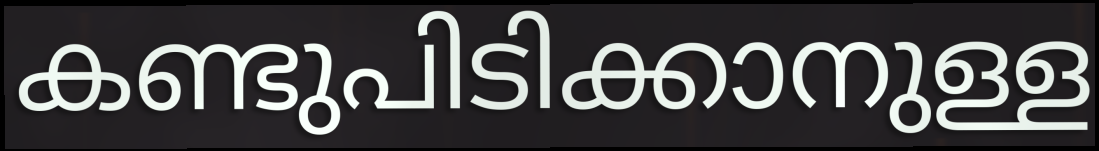
കണ്ടുപിടിക്കാനുള്ള